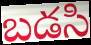
బడసి